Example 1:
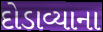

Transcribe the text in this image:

દોડાવ્યાના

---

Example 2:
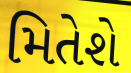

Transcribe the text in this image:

મિતેશે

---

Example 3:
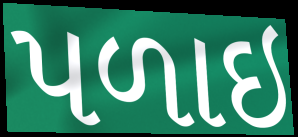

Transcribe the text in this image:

પળાઇ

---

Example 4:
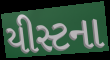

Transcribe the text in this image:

યીસ્ટના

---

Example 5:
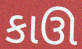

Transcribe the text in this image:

કાઊ